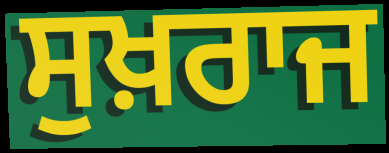
ਸੁਖ਼ਰਾਜ